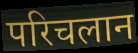
परिचलान